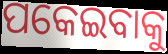
ପକେଇବାକୁ